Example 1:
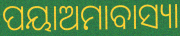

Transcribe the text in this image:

ପୟାଅମାବାସ୍ୟା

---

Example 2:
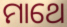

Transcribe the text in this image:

ମାଥେ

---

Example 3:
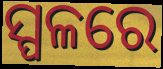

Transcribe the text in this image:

ସ୍ପଳରେ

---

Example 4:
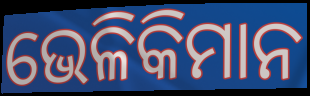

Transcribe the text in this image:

ଭେଳିକିମାନ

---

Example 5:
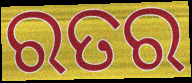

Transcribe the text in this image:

ରତର